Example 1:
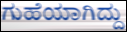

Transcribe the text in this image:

ಗುಹೆಯಾಗಿದ್ದು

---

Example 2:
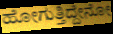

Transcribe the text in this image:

ಹೋಗುತ್ತಿದ್ದೇನೋ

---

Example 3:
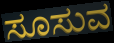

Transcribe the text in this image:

ಸೂಸುವ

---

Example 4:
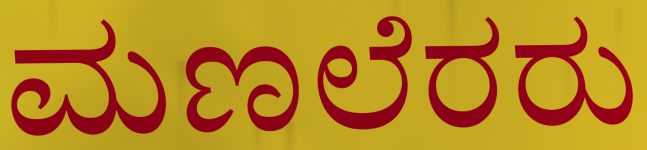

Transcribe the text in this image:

ಮಣಲೆರರು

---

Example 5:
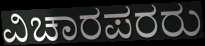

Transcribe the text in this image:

ವಿಚಾರಪರರು